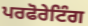
ਪਰਫੋਰੇਟਿੰਗ